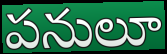
పనులూ